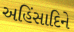
અહિંસાદિને